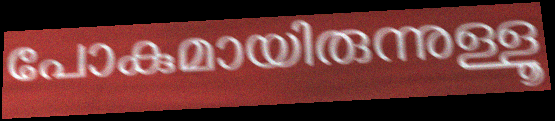
പോകുമായിരുന്നുള്ളൂ